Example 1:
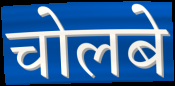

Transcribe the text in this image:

चोलबे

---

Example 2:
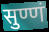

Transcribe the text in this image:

सुण्णं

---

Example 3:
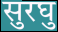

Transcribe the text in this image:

सुरघु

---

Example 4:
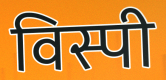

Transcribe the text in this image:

विस्पी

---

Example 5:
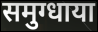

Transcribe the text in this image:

समुग्धाया